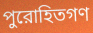
পুরোহিতগণ